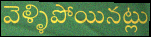
వెళ్ళిపోయినట్లు